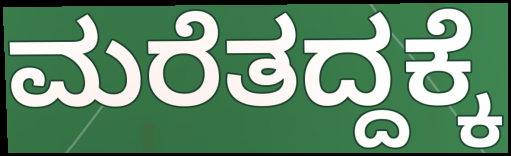
ಮರೆತದ್ದಕ್ಕೆ